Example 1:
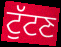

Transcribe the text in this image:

ਟੁੱਟਣ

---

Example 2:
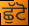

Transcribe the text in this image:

ਛੁੱਟੋ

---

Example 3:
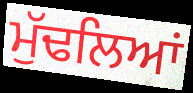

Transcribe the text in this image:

ਮੁੱਢਲਿਆਂ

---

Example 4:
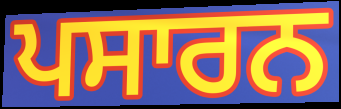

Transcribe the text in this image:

ਪਸਾਰਨ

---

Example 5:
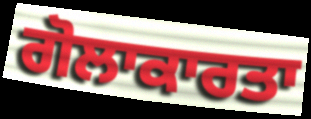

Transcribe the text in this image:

ਗੋਲਾਕਾਰਤਾ